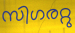
സിഗരറ്റു